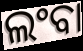
ଲଂବା